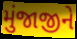
મુંજાજીને